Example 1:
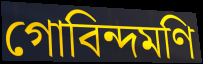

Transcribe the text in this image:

গোবিন্দমণি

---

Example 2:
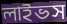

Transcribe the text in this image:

লাইভস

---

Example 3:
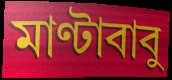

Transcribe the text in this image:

মাণ্টাবাবু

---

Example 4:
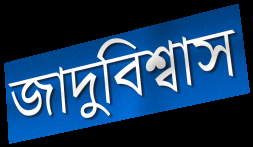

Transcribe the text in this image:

জাদুবিশ্বাস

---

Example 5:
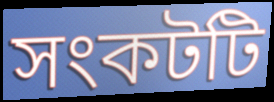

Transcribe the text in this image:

সংকটটি